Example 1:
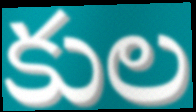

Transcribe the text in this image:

కుల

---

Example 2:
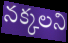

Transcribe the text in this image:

నక్కలని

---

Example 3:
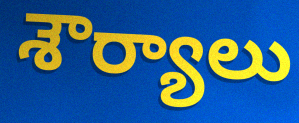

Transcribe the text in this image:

శౌర్యాలు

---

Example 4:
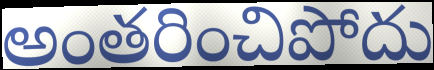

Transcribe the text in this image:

అంతరించిపోదు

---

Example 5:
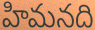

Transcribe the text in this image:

హిమనది